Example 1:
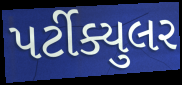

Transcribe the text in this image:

પર્ટીક્યુલર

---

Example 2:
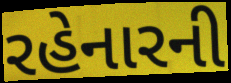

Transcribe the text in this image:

રહેનારની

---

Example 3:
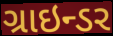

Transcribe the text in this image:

ગ્રાઇન્ડર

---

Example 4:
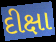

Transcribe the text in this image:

દીક્ષા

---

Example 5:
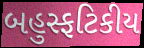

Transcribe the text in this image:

બહુસ્ફટિકીય